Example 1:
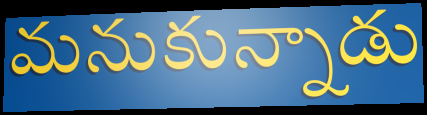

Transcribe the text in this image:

మనుకున్నాడు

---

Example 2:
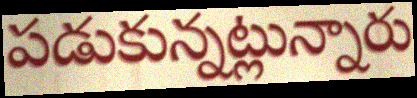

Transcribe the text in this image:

పడుకున్నట్లున్నారు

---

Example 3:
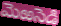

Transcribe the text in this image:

మెఱసెడి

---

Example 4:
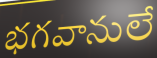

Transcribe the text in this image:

భగవానులే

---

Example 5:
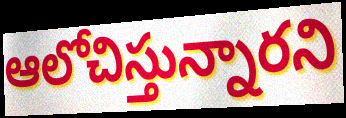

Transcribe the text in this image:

ఆలోచిస్తున్నారని